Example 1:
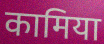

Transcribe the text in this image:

कामिया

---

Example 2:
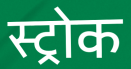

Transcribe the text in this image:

स्ट्रोक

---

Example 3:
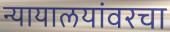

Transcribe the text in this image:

न्यायालयांवरचा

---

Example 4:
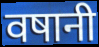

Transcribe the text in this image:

वषानी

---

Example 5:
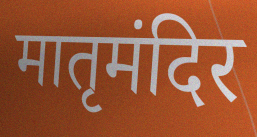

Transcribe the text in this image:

मातृमंदिर